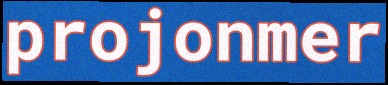
projonmer